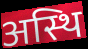
अस्थि